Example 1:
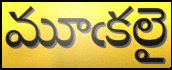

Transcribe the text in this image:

మూఁకలై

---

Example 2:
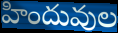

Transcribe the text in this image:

హిందువుల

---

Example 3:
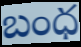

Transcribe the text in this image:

బంధ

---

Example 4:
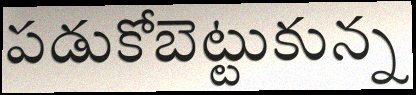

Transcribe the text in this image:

పడుకోబెట్టుకున్న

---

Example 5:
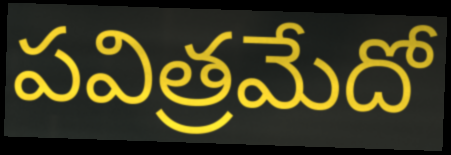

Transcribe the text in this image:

పవిత్రమేదో